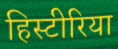
हिस्टीरिया